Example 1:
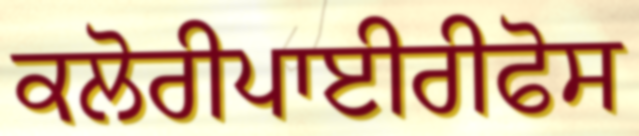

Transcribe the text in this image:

ਕਲੋਰੀਪਾਈਰੀਫੋਸ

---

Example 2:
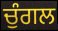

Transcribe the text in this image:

ਚੁੰਗਲ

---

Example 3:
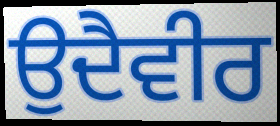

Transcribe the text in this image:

ਉਦੈਵੀਰ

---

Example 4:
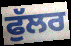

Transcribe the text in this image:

ਫੁੱਲਰ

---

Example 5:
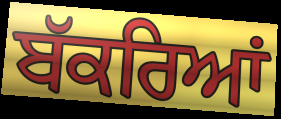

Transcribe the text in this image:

ਬੱਕਰਿਆਂ